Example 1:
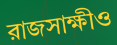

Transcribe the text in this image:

রাজসাক্ষীও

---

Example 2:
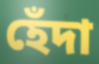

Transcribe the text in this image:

হেঁদা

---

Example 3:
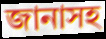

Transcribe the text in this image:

জানাসহ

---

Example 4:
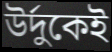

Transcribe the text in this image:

উর্দুকেই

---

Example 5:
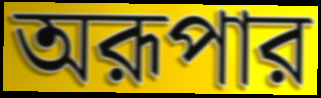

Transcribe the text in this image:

অরূপার